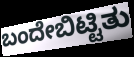
ಬಂದೇಬಿಟ್ಟಿತು